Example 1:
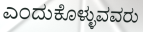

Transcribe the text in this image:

ಎಂದುಕೊಳ್ಳುವವರು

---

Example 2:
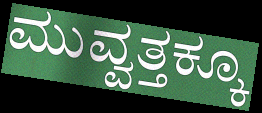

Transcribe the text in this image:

ಮುವ್ವತ್ತಕ್ಕೂ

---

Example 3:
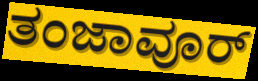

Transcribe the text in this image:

ತಂಜಾವೂರ್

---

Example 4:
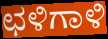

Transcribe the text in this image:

ಛಳಿಗಾಳಿ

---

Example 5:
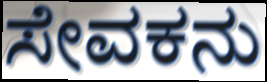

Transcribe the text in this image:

ಸೇವಕನು